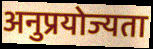
अनुप्रयोज्यता